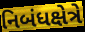
નિબંધક્ષેત્રે